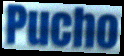
Pucho